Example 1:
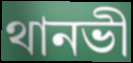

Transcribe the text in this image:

থানভী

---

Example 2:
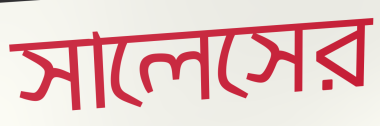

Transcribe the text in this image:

সালেসের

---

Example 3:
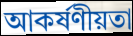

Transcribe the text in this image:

আকর্ষণীয়তা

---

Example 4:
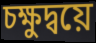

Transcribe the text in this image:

চক্ষুদ্বয়ে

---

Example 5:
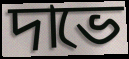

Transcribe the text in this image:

দাভে